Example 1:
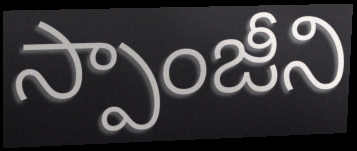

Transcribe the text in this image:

స్పాంజీని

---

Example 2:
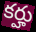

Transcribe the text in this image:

కర్హు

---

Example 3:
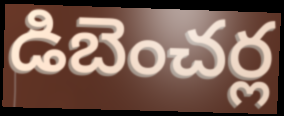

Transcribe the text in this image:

డిబెంచర్ల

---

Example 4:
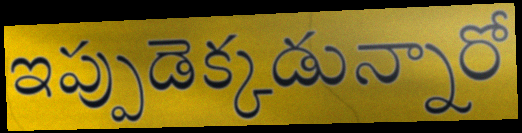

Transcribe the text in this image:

ఇప్పుడెక్కడున్నారో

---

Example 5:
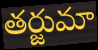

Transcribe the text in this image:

తర్జుమా